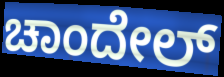
ಚಾಂದೇಲ್